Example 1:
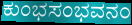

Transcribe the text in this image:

ಕುಂಭಸಂಭವನಂ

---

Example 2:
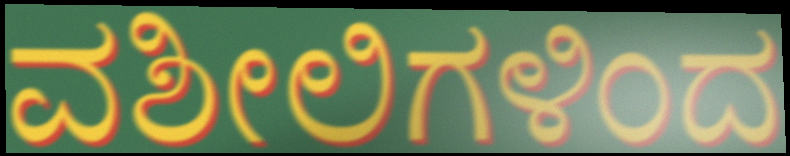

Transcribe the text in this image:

ವಶೀಲಿಗಳಿಂದ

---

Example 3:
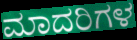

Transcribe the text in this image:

ಮಾದರಿಗಳ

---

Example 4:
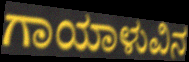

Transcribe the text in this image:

ಗಾಯಾಳುವಿನ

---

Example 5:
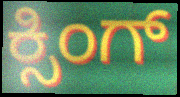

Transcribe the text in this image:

ಕ್ಸಿಂಗ್